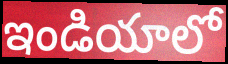
ఇండియాలో